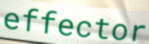
effector